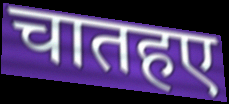
चातहए